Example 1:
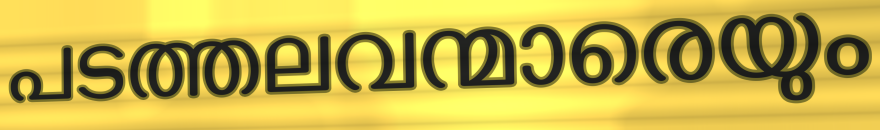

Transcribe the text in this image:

പടത്തലവന്മാരെയും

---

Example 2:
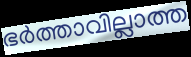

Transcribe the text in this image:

ഭർത്താവില്ലാത്ത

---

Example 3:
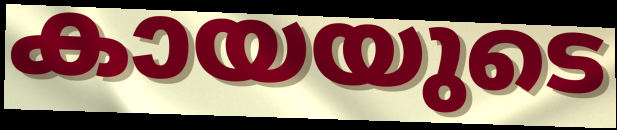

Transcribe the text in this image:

കായയുടെ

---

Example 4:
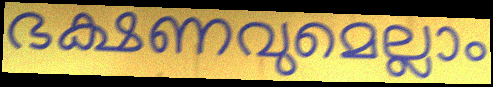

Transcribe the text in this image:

ഭക്ഷണവുമെല്ലാം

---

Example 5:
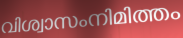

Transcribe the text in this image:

വിശ്വാസംനിമിത്തം